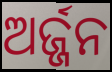
ଅର୍ଜ୍ଜନ